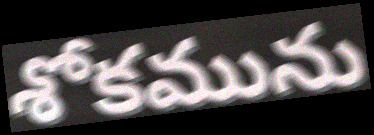
శోకమును